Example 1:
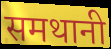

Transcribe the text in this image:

समथानी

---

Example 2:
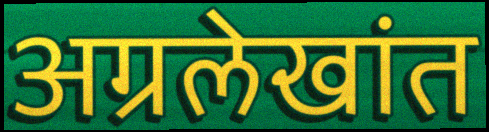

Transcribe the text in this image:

अग्रलेखांत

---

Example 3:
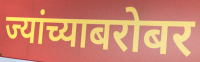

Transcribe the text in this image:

ज्यांच्याबरोबर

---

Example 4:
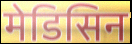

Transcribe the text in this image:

मेडिसिन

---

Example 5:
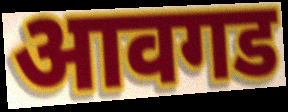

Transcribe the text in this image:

आवगड